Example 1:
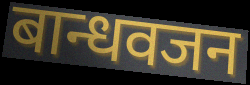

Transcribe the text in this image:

बान्धवजन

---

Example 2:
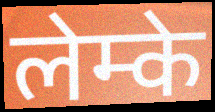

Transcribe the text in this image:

लेम्के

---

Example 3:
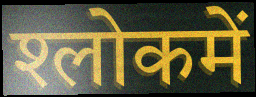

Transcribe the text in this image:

श्‍लोकमें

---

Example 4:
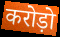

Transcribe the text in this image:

करोड़ो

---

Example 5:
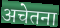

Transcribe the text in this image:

अचेतना